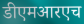
डीएमआरएच